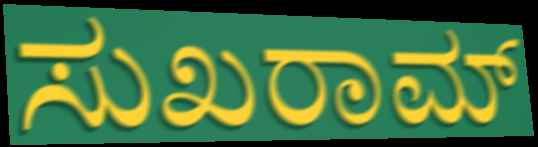
ಸುಖರಾಮ್